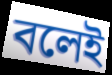
বলেই